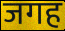
जगह